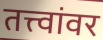
तत्त्वांवर